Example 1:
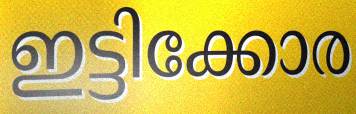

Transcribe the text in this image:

ഇട്ടിക്കോര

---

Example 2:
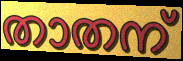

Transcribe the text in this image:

താതന്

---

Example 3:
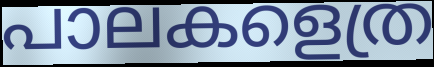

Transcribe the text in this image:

പാലകളെത്ര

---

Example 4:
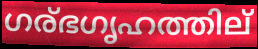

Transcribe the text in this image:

ഗര്ഭഗൃഹത്തില്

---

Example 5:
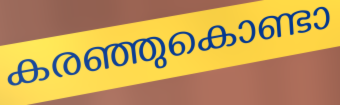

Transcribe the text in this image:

കരഞ്ഞുകൊണ്ടാ